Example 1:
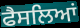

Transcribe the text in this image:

ਫੈਸਲਿਆਂ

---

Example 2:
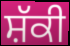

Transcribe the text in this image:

ਸ਼ੱਕੀ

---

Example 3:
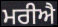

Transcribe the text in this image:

ਮਰੀਐ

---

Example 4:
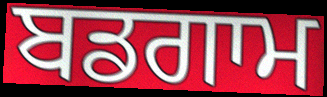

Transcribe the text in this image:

ਬਡਗਾਮ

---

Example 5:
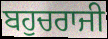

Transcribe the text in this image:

ਬਹੁਚਰਾਜੀ